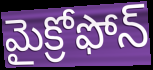
మైక్రోఫోన్